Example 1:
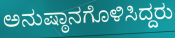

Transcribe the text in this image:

ಅನುಷ್ಠಾನಗೊಳಿಸಿದ್ದರು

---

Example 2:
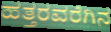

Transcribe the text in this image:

ಹತ್ತರವರೆಗಿನ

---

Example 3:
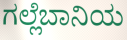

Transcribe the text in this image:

ಗಲ್ಲೆಬಾನಿಯ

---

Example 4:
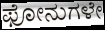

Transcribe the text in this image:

ಫೋನುಗಳೇ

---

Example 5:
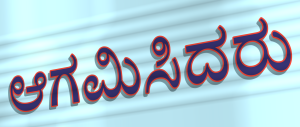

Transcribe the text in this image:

ಆಗಮಿಸಿದರು